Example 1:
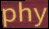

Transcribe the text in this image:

phy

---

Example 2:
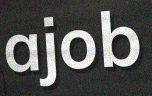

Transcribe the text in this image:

ajob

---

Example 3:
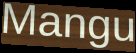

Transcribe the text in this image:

Mangu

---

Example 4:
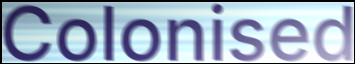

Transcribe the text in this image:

Colonised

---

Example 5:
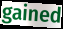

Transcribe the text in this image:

gained